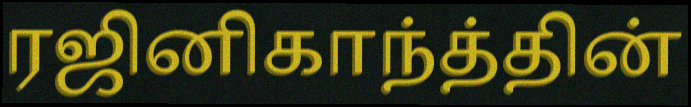
ரஜினிகாந்த்தின்